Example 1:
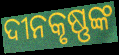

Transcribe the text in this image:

ଦୀନକୃଷ୍ଣଙ୍କ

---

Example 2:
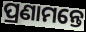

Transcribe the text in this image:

ପ୍ରଣାମନ୍ତେ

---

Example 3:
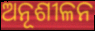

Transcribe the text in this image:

ଅନୂଶୀଳନ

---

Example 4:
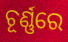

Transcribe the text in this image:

ଚୂର୍ଣ୍ଣରେ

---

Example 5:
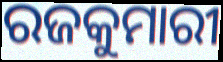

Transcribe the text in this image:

ରଜକୁମାରୀ